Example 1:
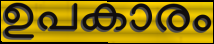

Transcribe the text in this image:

ഉപകാരം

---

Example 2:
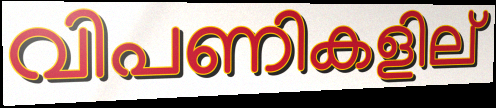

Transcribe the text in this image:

വിപണികളില്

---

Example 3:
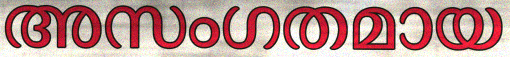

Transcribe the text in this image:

അസംഗതമായ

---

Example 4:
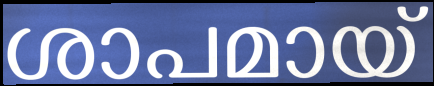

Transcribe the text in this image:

ശാപമായ്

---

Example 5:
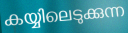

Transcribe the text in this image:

കയ്യിലെടുക്കുന്ന